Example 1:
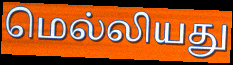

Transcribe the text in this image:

மெல்லியது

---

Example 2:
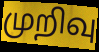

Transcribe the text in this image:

முறிவு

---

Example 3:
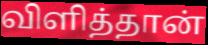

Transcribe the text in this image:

விளித்தான்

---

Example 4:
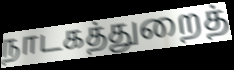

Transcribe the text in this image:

நாடகத்துறைத்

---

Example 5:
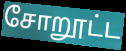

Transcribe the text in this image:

சோறூட்ட